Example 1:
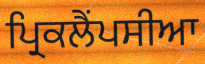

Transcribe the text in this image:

ਪ੍ਰਿਕਲੈਂਪਸੀਆ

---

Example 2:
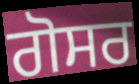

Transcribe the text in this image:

ਗੋਸਰ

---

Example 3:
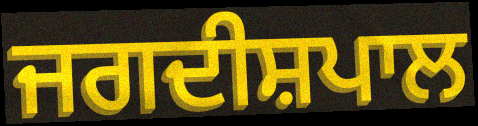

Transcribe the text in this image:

ਜਗਦੀਸ਼ਪਾਲ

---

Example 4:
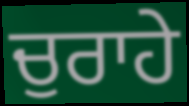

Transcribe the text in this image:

ਚੁਰਾਹੇ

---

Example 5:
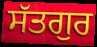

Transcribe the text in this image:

ਸੱਤਗੁਰ